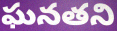
ఘనతని